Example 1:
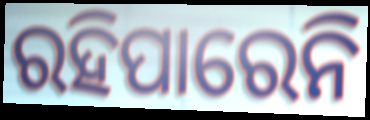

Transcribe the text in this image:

ରହିପାରେନି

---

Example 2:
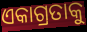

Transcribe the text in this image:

ଏକାଗ୍ରତାକୁ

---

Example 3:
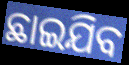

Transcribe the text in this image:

ଛାଇଯିବ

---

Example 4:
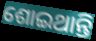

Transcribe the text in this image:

ଶୋଇଥାନ୍ତି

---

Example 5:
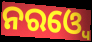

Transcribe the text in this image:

ନରଓ୍ୱେ